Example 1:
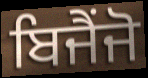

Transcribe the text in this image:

ਬਿਜੈਂਜੋ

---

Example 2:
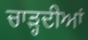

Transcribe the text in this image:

ਚਾੜ੍ਹਦੀਆਂ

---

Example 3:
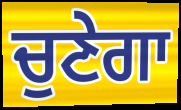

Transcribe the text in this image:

ਚੁਣੇਗਾ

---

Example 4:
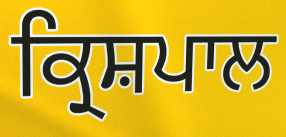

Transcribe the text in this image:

ਕ੍ਰਿਸ਼ਪਾਲ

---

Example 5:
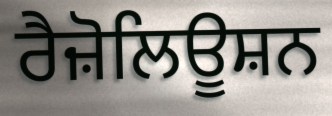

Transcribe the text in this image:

ਰੈਜ਼ੋਲਿਊਸ਼ਨ